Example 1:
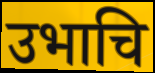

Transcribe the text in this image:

उभाचि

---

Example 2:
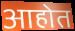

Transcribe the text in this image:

आहोत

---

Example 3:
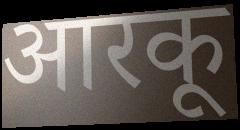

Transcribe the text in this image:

आरकू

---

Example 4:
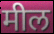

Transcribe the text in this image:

मील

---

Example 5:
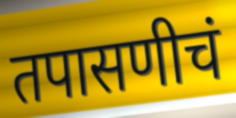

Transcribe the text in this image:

तपासणीचं